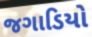
જગાડિયો